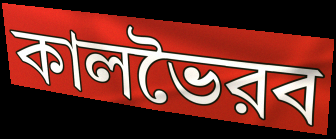
কালভৈরব